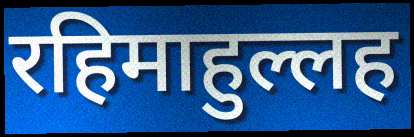
रहिमाहुल्लह